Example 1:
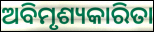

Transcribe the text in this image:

ଅବିମୃଶ୍ୟକାରିତା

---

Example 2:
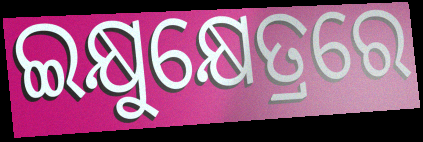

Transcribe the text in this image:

ଇକ୍ଷୁକ୍ଷେତ୍ରରେ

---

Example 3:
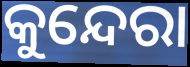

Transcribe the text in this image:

କୁନ୍ଦେରା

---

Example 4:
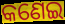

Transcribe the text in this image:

କଣେଇ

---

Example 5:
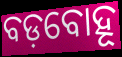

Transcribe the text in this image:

ବଡ଼ବୋହୂ